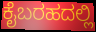
ಕೈಬರಹದಲ್ಲಿ